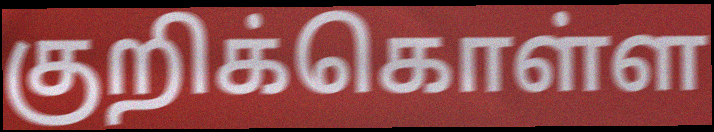
குறிக்கொள்ள